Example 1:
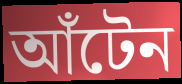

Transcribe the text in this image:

আঁটেন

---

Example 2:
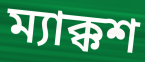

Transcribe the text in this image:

ম্যাক্কশ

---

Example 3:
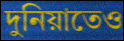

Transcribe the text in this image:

দুনিয়াতেও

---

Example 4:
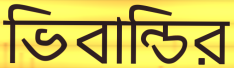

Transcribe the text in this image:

ভিবান্ডির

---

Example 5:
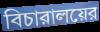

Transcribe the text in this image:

বিচারালয়ের